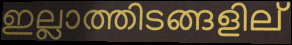
ഇല്ലാത്തിടങ്ങളില്